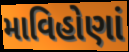
માવિહોણાં